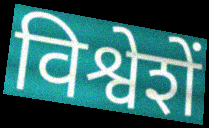
विश्वेशें